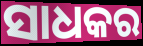
ସାଧକର